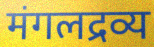
मंगलद्रव्य